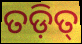
ତଡ଼ିତ୍